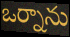
ఒర్నాను